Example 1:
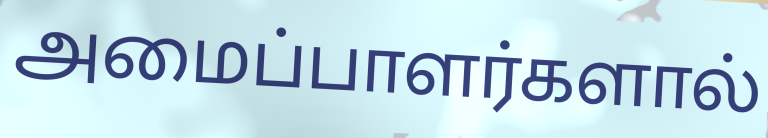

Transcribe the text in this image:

அமைப்பாளர்களால்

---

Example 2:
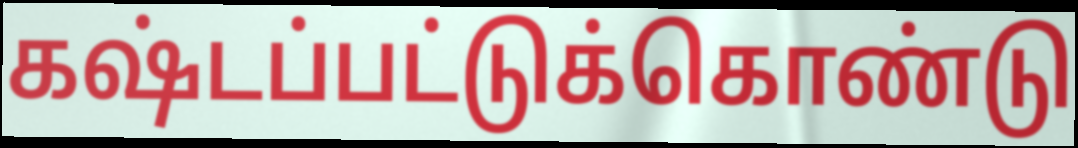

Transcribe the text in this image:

கஷ்டப்பட்டுக்கொண்டு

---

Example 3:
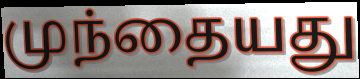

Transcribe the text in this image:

முந்தையது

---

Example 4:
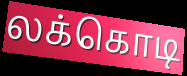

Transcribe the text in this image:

லக்கொடி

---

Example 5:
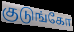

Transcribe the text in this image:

குடுங்கோ